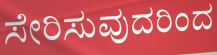
ಸೇರಿಸುವುದರಿಂದ